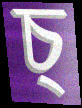
চ্